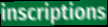
inscriptions